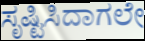
ಸೃಷ್ಟಿಸಿದಾಗಲೇ